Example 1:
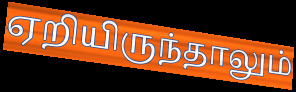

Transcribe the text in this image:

ஏறியிருந்தாலும்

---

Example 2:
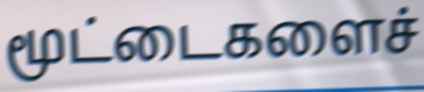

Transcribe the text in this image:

மூட்டைகளைச்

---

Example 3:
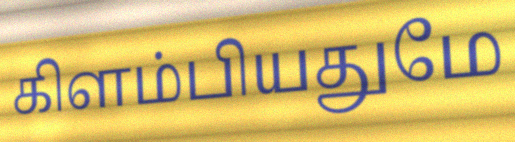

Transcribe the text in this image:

கிளம்பியதுமே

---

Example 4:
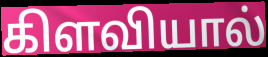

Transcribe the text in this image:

கிளவியால்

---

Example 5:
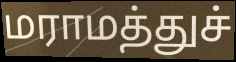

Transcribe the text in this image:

மராமத்துச்